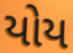
યોય